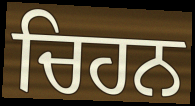
ਚਿਹਨ